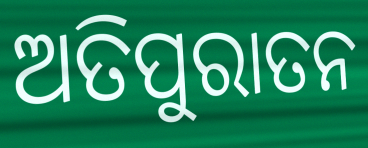
ଅତିପୁରାତନ